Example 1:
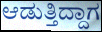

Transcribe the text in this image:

ಆಡುತ್ತಿದ್ದಾಗ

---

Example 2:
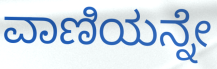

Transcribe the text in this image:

ವಾಣಿಯನ್ನೇ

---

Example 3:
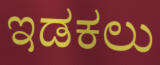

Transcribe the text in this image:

ಇಡಕಲು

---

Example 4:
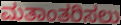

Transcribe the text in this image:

ಮತಾಂತರಿಸಲು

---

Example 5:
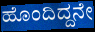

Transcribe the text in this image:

ಹೊಂದಿದ್ದನೇ